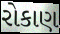
રોકાણ